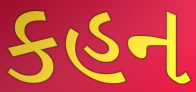
કહન